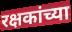
रक्षकांच्या